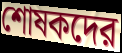
শোষকদের